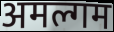
अमल्गम